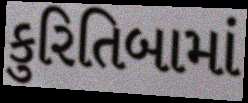
કુરિતિબામાં